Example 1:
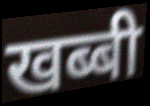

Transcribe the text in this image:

खब्बी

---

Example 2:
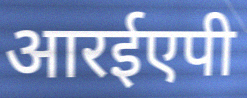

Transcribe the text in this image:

आरईएपी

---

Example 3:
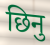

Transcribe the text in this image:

छिनु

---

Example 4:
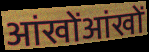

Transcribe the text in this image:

आंखोंआंखों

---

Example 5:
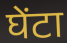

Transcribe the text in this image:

घेंटा